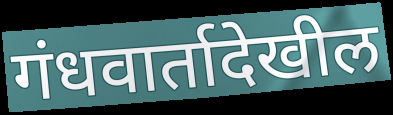
गंधवार्तादेखील